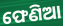
ଫେଣିଆ